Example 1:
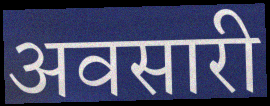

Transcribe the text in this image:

अवसारी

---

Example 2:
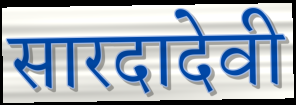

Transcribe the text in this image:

सारदादेवी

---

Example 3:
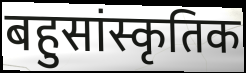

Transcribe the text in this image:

बहुसांस्कृतिक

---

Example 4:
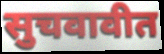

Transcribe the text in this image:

सुचवावीत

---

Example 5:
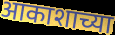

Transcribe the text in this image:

आकाशाच्या